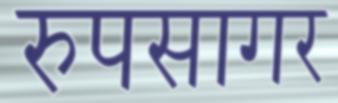
रुपसागर